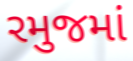
રમુજમાં